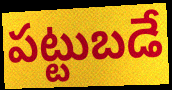
పట్టుబడే